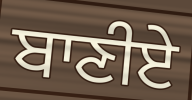
ਬਾਣੀਏ